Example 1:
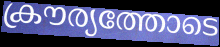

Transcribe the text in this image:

ക്രൗര്യത്തോടെ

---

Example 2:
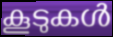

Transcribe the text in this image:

കൂടുകൾ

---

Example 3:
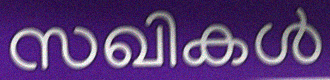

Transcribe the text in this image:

സഖികൾ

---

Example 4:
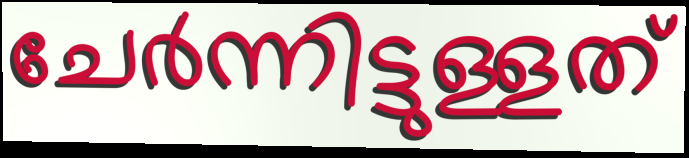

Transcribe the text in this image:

ചേർന്നിട്ടുള്ളത്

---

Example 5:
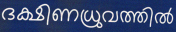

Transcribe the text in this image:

ദക്ഷിണധ്രുവത്തിൽ